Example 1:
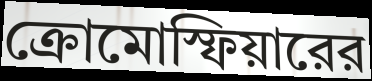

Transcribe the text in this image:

ক্রোমোস্ফিয়ারের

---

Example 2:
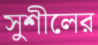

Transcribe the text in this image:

সুশীলের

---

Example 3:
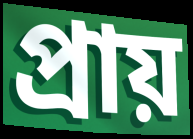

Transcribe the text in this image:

প্রায়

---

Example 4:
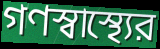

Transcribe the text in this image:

গণস্বাস্থ্যের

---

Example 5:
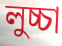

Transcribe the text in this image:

লুচ্চা